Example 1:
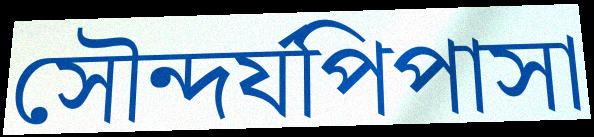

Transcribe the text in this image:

সৌন্দর্যপিপাসা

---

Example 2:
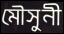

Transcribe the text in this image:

মৌসুনী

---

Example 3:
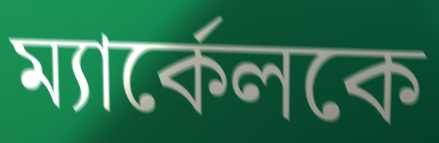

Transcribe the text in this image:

ম্যার্কেলকে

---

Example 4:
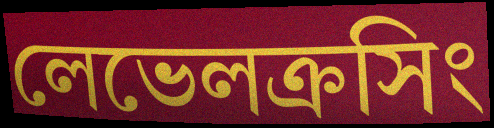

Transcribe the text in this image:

লেভেলক্রসিং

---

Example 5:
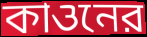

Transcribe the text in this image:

কাওনের